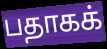
பதாகக்